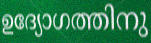
ഉദ്യോഗത്തിനു